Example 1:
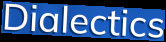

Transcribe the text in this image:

Dialectics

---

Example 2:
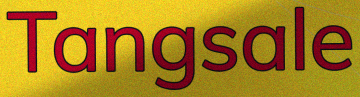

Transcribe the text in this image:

Tangsale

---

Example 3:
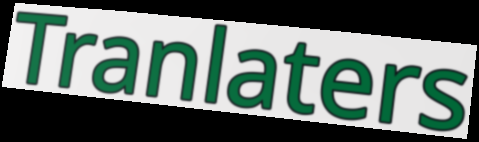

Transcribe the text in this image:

Tranlaters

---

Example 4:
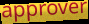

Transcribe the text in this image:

approver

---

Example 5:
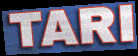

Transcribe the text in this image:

TARI